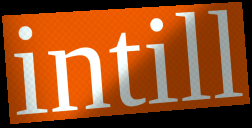
intill